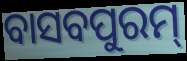
ବାସବପୁରମ୍